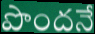
పొందనే